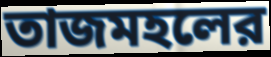
তাজমহলের